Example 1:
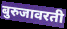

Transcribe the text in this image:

बुरुजावरती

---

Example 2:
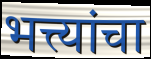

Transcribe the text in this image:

भत्त्यांचा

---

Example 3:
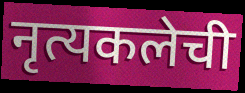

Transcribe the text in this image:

नृत्यकलेची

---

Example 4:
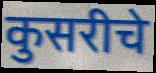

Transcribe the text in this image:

कुसरीचे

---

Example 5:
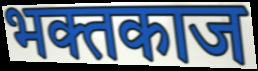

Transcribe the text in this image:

भक्तकाज